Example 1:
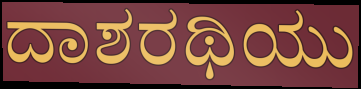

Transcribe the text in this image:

ದಾಶರಥಿಯು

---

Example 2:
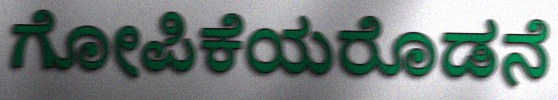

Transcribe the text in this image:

ಗೋಪಿಕೆಯರೊಡನೆ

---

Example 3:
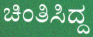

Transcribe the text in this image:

ಚಿಂತಿಸಿದ್ದ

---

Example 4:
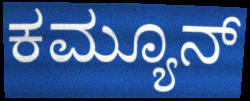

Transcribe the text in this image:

ಕಮ್ಯೂನ್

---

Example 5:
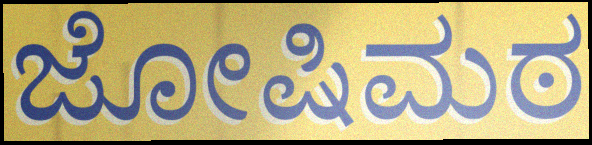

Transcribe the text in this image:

ಜೋಷಿಮಠ